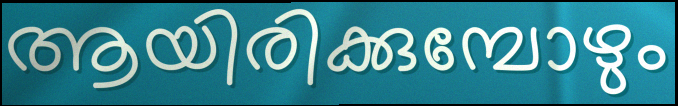
ആയിരിക്കുമ്പോഴും